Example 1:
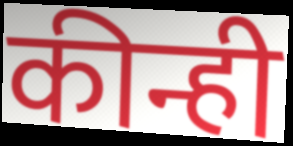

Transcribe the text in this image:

कीन्ही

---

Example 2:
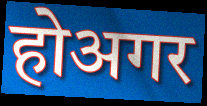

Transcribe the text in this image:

होअगर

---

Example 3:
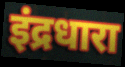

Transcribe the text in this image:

इंद्रधारा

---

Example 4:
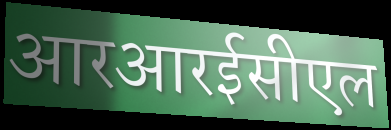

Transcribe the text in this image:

आरआरईसीएल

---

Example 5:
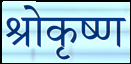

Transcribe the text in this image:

श्रोकृष्ण